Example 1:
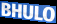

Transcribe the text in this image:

BHULO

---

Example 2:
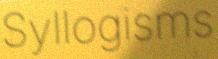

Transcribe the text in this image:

Syllogisms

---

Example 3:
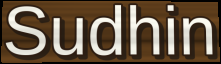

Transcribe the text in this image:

Sudhin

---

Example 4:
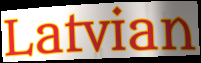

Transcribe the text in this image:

Latvian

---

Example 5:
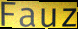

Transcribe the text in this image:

Fauz